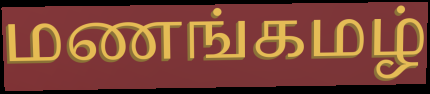
மணங்கமழ்